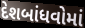
દેશબાંધવોમાં